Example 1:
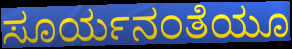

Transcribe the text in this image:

ಸೂರ್ಯನಂತೆಯೂ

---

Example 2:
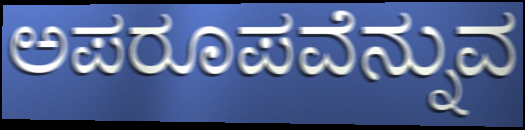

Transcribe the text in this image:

ಅಪರೂಪವೆನ್ನುವ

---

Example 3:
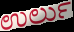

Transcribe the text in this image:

ಉರ್ಲು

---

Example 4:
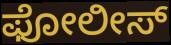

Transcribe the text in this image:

ಫೋಲೀಸ್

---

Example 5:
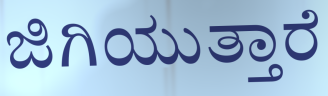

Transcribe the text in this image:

ಜಿಗಿಯುತ್ತಾರೆ